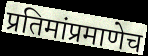
प्रतिमांप्रमाणेच